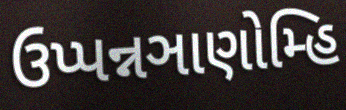
ઉપ્પન્નઞાણોમ્હિ